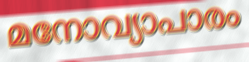
മനോവ്യാപാരം